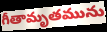
గీతామృతమును